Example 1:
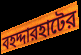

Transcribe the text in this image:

বহদ্দারহাটের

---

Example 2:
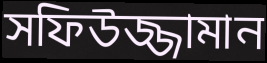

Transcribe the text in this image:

সফিউজ্জামান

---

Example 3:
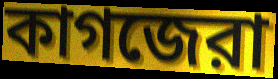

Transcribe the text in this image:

কাগজেরা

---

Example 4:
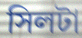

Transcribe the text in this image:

সিলটা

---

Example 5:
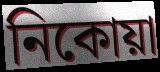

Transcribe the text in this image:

নিকোয়া